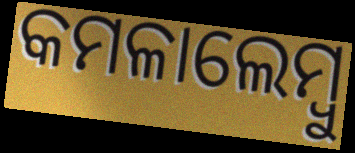
କମଳାଲେମ୍ୱୁ